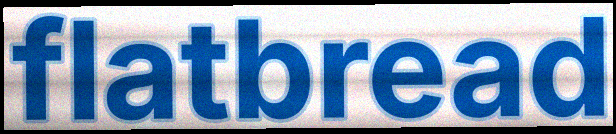
flatbread